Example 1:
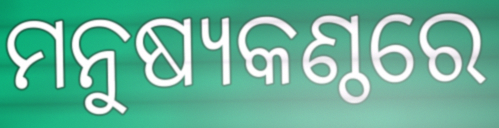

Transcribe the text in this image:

ମନୁଷ୍ୟକଣ୍ଠରେ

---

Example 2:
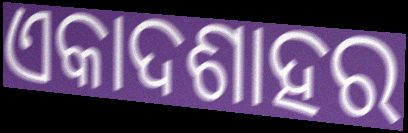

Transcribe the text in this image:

ଏକାଦଶାହର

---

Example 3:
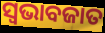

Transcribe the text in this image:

ସ୍ୱଭାବଜାତ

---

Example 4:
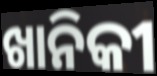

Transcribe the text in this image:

ଖାନିକୀ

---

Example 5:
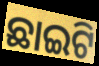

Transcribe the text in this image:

ଛାଇଟି